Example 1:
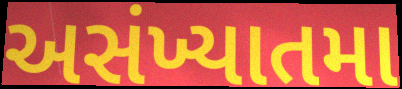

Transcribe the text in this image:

અસંખ્યાતમા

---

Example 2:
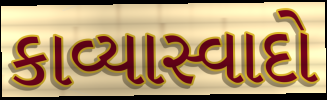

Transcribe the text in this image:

કાવ્યાસ્વાદો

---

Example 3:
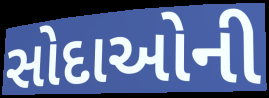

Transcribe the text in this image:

સોદાઓની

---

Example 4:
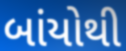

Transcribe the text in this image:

બાંયોથી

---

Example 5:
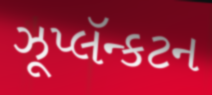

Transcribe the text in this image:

ઝૂપ્લૅન્કટન